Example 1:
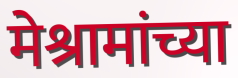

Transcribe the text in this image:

मेश्रामांच्या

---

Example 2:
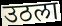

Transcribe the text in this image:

उठला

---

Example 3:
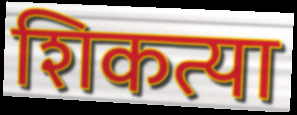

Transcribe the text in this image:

शिकत्या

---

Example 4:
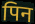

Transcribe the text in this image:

पिन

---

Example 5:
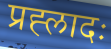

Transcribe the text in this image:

प्रह्लादः